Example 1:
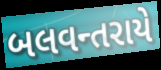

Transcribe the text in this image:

બલવન્તરાયે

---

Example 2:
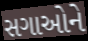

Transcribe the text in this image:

સગાઓને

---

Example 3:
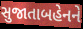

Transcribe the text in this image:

સુજાતાબહેનને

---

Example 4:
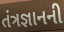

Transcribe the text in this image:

તંત્રજ્ઞાનની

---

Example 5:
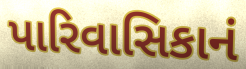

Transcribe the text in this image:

પારિવાસિકાનં